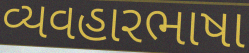
વ્યવહારભાષા